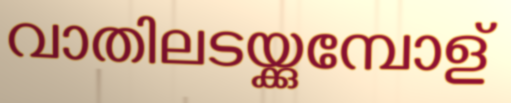
വാതിലടയ്ക്കുമ്പോള്